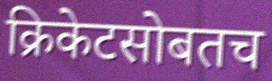
क्रिकेटसोबतच